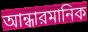
আন্ধারমানিক